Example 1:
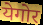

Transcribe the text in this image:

येगोर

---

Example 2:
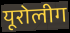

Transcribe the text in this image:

यूरोलीग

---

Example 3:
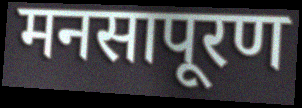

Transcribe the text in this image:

मनसापूरण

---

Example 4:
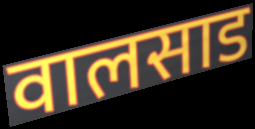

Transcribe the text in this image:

वालसाड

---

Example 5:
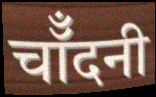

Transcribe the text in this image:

चॉँदनी